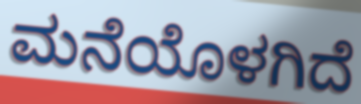
ಮನೆಯೊಳಗಿದೆ